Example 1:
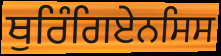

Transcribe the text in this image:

ਥੁਰਿੰਗਿਏਨਸਿਸ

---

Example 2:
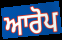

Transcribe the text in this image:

ਆਰੋਪ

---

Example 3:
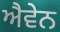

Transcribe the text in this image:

ਐਵੇਨ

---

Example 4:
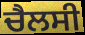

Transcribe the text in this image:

ਚੈਲਸੀ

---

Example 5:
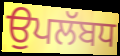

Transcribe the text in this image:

ਉਪਲੱਬਧ